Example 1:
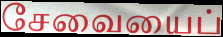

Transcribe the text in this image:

சேவையைப்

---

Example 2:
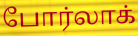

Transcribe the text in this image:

போர்லாக்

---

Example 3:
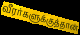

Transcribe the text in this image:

வீரர்களுக்குத்தான்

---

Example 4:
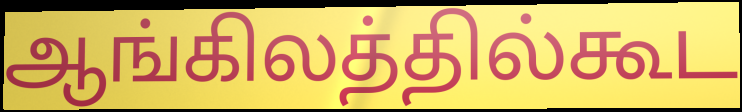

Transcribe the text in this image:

ஆங்கிலத்தில்கூட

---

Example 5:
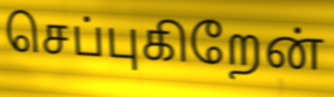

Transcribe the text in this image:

செப்புகிறேன்